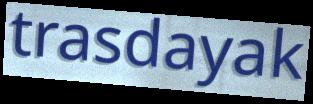
trasdayak